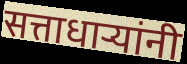
सत्ताधाऱ्यांनी